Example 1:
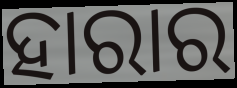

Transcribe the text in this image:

ହାରାର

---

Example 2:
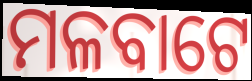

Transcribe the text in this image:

ମଳବାଟେ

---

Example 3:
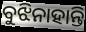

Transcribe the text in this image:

ବୁଝିନାହାନ୍ତି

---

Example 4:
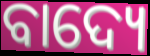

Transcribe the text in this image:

ବାଦ୍ୟେ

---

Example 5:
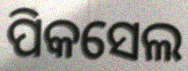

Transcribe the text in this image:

ପିକସେଲ